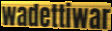
wadettiwar